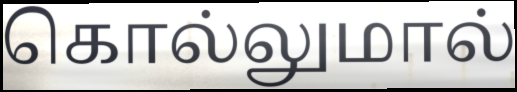
கொல்லுமால்